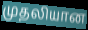
முதலியான